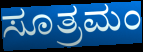
ಸೂತ್ರಮಂ